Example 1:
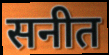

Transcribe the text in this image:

सनीत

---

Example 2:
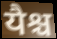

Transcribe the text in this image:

यैश्च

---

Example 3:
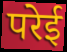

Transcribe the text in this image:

परेई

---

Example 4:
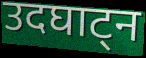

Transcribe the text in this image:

उदघाट्न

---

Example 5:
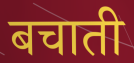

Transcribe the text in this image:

बचाती